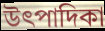
উৎপাদিকা